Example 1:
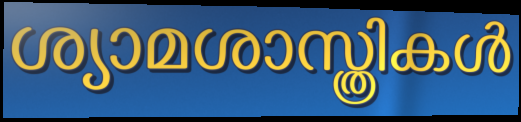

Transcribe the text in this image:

ശ്യാമശാസ്ത്രികൾ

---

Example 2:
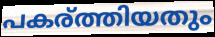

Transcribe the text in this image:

പകര്ത്തിയതും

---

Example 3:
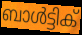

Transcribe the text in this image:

ബാൾട്ടിക്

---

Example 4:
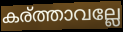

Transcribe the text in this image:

കര്ത്താവല്ലേ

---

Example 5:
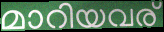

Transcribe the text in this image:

മാറിയവര്